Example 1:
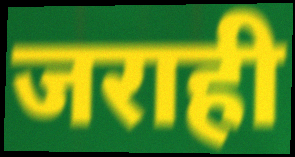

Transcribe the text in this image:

जराही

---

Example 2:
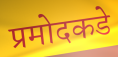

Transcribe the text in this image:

प्रमोदकडे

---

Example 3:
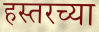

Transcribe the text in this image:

हस्तरच्या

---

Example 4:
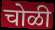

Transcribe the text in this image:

चोळी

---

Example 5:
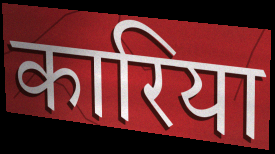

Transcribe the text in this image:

कारिया